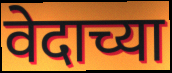
वेदाच्या